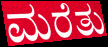
ಮರೆತು